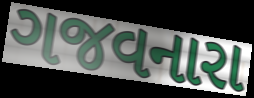
ગજવનારા